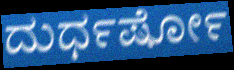
ದುರ್ಧರ್ಷೋ